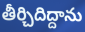
తీర్చిదిద్దాను